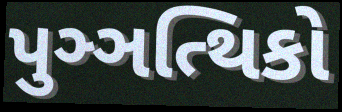
પુઞ્ઞત્થિકો